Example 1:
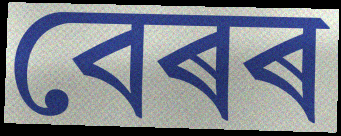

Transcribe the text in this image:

বেৰৰ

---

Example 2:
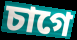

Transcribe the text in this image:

চাগে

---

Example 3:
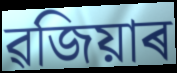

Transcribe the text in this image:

ৱজিয়াৰ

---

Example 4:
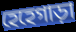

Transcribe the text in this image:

হেহেগাড়া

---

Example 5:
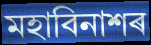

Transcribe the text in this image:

মহাবিনাশৰ